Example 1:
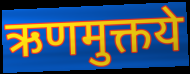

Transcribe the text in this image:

ऋणमुक्तये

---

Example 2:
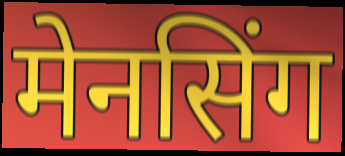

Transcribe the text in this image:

मेनसिंग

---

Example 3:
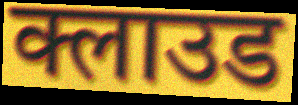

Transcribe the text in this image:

क्‍लाउड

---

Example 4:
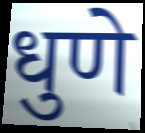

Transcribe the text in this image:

धुणे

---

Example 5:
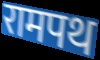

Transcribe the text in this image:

रामपथ